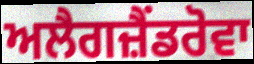
ਅਲੈਗਜ਼ੈਂਡਰੋਵਾ